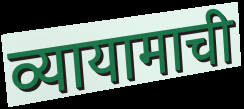
व्यायामाची